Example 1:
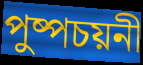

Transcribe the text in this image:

পুষ্পচয়নী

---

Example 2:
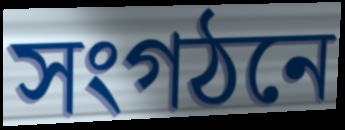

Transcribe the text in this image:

সংগঠনে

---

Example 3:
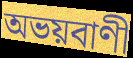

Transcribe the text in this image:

অভয়বাণী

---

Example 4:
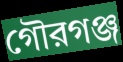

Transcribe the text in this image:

গৌরগঞ্জ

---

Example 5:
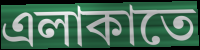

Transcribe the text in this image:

এলাকাতে